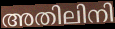
അതിലിനി